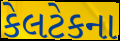
કેલટેકના